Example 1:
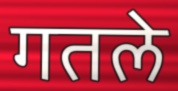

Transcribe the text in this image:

गतले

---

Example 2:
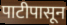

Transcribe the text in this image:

पाटीपासून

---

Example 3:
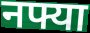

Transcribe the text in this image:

नफ्या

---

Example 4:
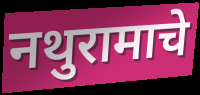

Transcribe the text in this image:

नथुरामाचे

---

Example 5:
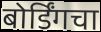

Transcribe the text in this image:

बोर्डिंगचा